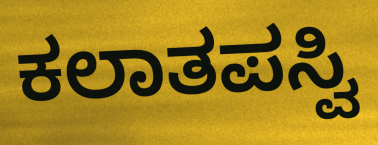
ಕಲಾತಪಸ್ವಿ